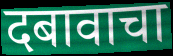
दबावाचा